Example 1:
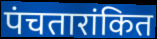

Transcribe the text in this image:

पंचतारांकित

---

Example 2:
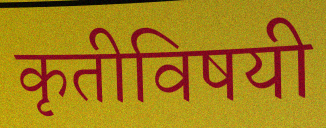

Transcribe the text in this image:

कृतीविषयी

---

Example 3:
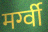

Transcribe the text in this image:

मर्ग्वी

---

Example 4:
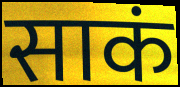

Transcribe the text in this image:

साकं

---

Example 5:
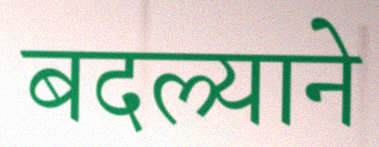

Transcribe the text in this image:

बदल्याने